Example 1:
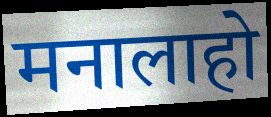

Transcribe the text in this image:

मनालाहो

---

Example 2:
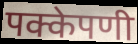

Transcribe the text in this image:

पक्केपणी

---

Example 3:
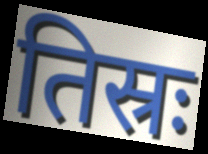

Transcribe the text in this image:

तिस्रः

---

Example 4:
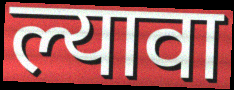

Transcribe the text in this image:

ल्यावा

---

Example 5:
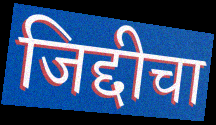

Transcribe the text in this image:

जिद्दीचा